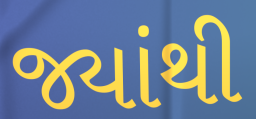
જ્યાંથી